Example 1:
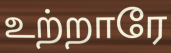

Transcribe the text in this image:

உற்றாரே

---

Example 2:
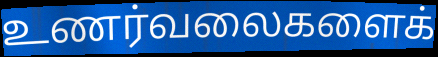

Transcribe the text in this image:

உணர்வலைகளைக்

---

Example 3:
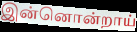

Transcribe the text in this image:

இன்னொன்றாய்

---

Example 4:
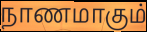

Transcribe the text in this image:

நாணமாகும்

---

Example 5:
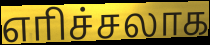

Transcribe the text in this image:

எரிச்சலாக